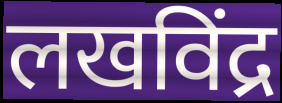
लखविंद्र